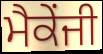
ਮੈਕੇਂਜੀ